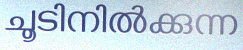
ചൂടിനിൽക്കുന്ന